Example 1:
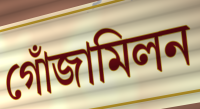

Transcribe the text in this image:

গোঁজামিলন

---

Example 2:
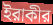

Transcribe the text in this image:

ইরাকীর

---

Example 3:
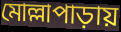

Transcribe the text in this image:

মোল্লাপাড়ায়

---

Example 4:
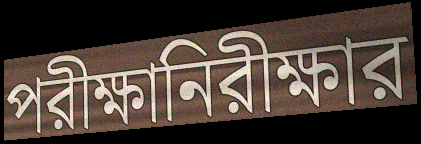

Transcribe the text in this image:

পরীক্ষানিরীক্ষার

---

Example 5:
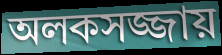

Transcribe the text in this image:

অলকসজ্জায়